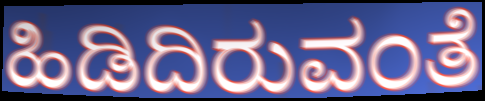
ಹಿಡಿದಿರುವಂತೆ